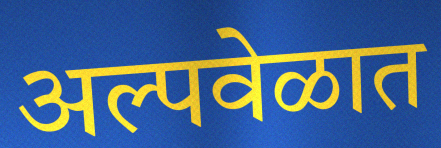
अल्पवेळात